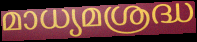
മാധ്യമശ്രദ്ധ